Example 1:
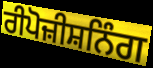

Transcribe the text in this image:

ਰੀਪੋਜ਼ੀਸ਼ਨਿੰਗ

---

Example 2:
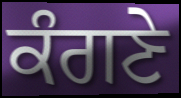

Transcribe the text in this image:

ਕੰਗਣੇ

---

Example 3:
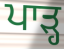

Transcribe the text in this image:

ਪਾੜ੍ਹ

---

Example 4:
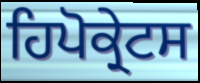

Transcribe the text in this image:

ਹਿਪੋਕ੍ਰੇਟਸ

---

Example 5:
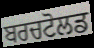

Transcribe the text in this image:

ਬਰਚਟੋਲਡ